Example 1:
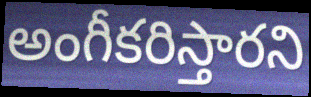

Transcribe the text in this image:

అంగీకరిస్తారని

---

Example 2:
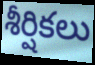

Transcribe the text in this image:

శీర్షికలు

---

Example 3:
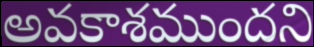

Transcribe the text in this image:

అవకాశముందని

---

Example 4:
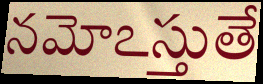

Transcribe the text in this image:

నమోఽస్తుతే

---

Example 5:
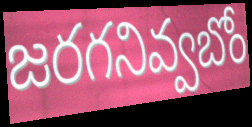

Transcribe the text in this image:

జరగనివ్వబోం